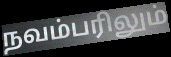
நவம்பரிலும்